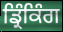
ਡ੍ਰਿੰਕਿੰਗ